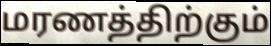
மரணத்திற்கும்